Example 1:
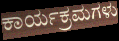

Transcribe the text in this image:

ಕಾರ್ಯಕ್ರಮಗಳು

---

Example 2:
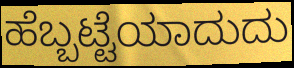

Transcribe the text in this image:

ಹೆಬ್ಬಟ್ಟೆಯಾದುದು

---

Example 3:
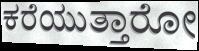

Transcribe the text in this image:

ಕರೆಯುತ್ತಾರೋ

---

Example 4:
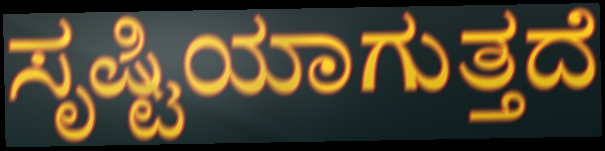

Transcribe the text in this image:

ಸೃಷ್ಟಿಯಾಗುತ್ತದೆ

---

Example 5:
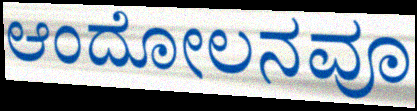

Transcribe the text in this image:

ಆಂದೋಲನವೂ